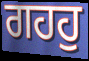
ਗਹਹੁ